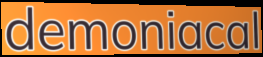
demoniacal